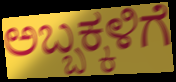
ಅಬ್ಬಕ್ಕಳಿಗೆ